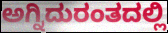
ಅಗ್ನಿದುರಂತದಲ್ಲಿ